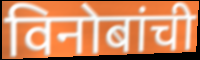
विनोबांची